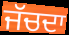
ਜੱਚਦਾ